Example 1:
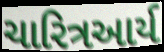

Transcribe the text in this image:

ચારિત્રઆર્ય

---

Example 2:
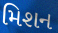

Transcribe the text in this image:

મિશન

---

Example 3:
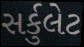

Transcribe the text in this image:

સર્કુલેટ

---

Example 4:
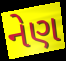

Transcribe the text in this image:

નેણ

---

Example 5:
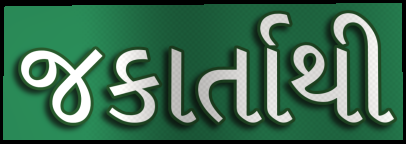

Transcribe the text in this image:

જકાર્તાથી